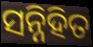
ସନ୍ନିହିତ